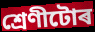
শ্ৰেণীটোৰ